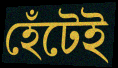
হেঁটেই